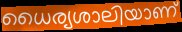
ധൈര്യശാലിയാണ്